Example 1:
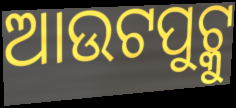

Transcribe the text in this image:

ଆଉଟପୁଟ୍କୁ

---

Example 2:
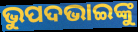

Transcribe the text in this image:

ଭୁପଦଭାଇଙ୍କୁ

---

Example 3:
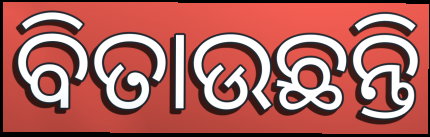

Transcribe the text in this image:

ବିତାଉଛନ୍ତି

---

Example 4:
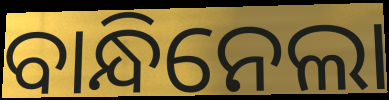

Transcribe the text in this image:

ବାନ୍ଧିନେଲା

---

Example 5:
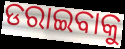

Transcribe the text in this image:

ଡରାଇବାକୁ